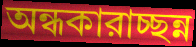
অন্ধকারাচ্ছন্ন